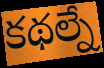
కథల్నే